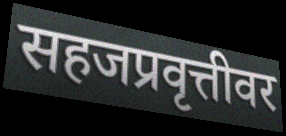
सहजप्रवृत्तीवर